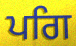
ਪਗਿ